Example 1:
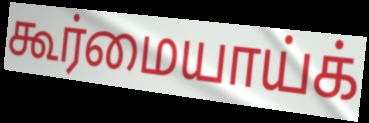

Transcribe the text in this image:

கூர்மையாய்க்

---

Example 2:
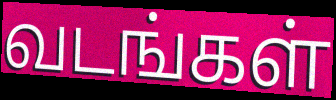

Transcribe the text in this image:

வடங்கள்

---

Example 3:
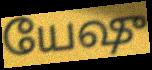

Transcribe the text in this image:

யேஷு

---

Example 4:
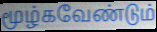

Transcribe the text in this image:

மூழ்கவேண்டும்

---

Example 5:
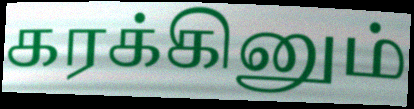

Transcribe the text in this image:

கரக்கினும்